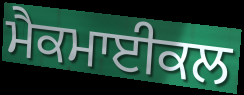
ਮੈਕਮਾਈਕਲ